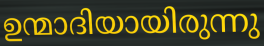
ഉന്മാദിയായിരുന്നു